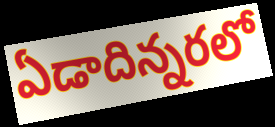
ఏడాదిన్నరలో